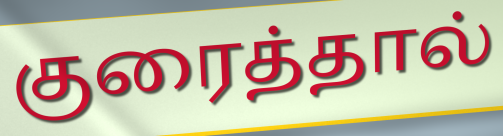
குரைத்தால்